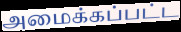
அமைக்கப்பட்ட